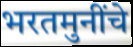
भरतमुनींचे